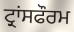
ਟ੍ਰਾਂਸਫੌਰਮ